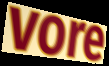
vore